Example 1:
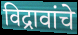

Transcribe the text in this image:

विद्रावांचे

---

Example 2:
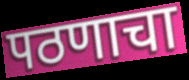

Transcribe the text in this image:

पठणाचा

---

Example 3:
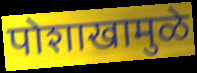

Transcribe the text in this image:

पोशाखामुळे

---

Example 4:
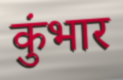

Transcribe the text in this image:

कुंभार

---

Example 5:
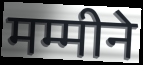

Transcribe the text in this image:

मम्मीने